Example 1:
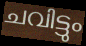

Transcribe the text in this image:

ചവിട്ടും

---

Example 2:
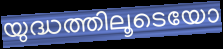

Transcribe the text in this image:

യുദ്ധത്തിലൂടെയോ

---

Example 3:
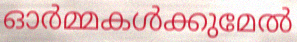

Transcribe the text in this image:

ഓർമ്മകൾക്കുമേൽ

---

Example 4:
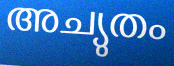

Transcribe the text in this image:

അച്യുതം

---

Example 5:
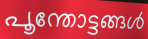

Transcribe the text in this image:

പൂന്തോട്ടങ്ങൾ